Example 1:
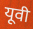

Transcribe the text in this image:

यूवी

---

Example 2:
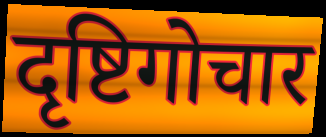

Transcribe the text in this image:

दृष्टिगोचार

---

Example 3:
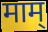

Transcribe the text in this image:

माम्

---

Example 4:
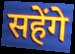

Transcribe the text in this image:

सहेंगे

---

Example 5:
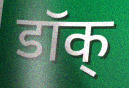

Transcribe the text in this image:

डॉक्